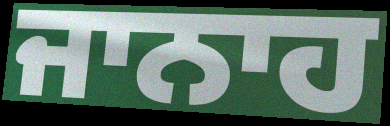
ਜਾਨਾਹ